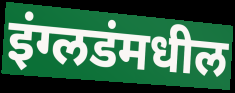
इंग्लडंमधील